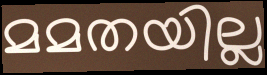
മമതയില്ല